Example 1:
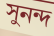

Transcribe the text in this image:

সুনন্দ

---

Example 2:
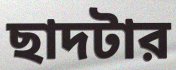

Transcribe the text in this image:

ছাদটার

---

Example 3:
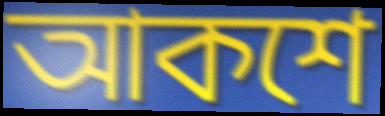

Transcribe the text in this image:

আকশে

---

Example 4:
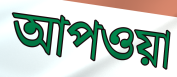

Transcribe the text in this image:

আপওয়া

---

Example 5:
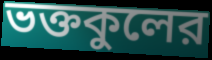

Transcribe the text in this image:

ভক্তকুলের